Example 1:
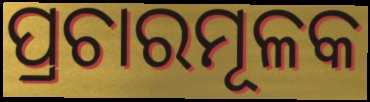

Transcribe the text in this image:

ପ୍ରଚାରମୂଳକ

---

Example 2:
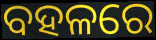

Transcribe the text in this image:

ବହଳରେ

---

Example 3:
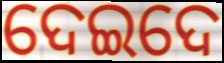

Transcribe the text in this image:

ଦେଇଦେ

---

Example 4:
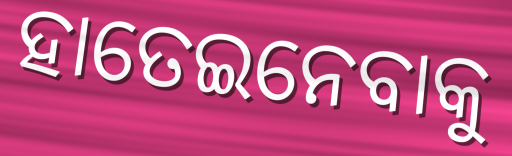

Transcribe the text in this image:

ହାତେଇନେବାକୁ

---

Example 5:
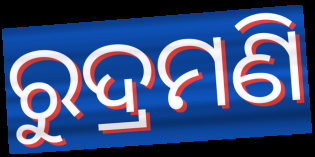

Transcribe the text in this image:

ରୁଦ୍ରମଣି